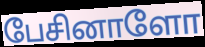
பேசினாளோ